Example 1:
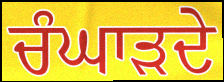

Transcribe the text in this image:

ਚੰਘਾੜਦੇ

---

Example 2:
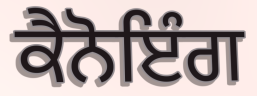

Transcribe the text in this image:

ਕੈਨੋਇੰਗ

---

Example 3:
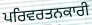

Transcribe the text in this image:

ਪਰਿਵਰਤਨਕਾਰੀ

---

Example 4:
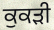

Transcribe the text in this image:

ਕੁਕੜੀ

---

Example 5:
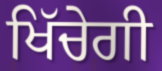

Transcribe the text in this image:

ਖਿੱਚੇਗੀ